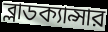
ব্লাডক্যান্সার